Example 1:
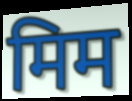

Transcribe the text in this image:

मिम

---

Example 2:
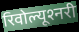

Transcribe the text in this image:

रिवोल्यूश्नरी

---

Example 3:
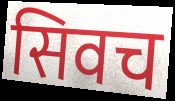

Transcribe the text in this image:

सिवच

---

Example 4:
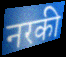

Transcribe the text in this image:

नरकी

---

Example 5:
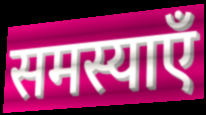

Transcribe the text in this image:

समस्याएँ